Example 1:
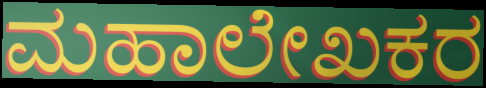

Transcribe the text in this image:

ಮಹಾಲೇಖಕರ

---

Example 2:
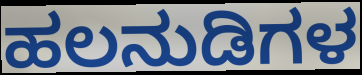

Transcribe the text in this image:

ಹಲನುಡಿಗಳ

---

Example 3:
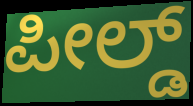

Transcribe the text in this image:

ಪೀಲ್ಡ್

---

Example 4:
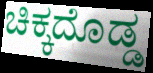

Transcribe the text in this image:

ಚಿಕ್ಕದೊಡ್ಡ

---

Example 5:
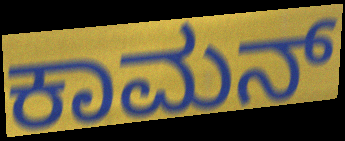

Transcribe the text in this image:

ಕಾಮನ್